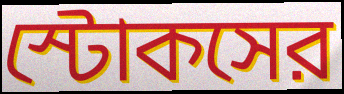
স্টোকসের